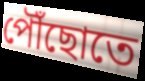
পৌঁছোতে